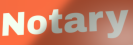
Notary